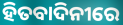
ହିତବାଦିନୀରେ